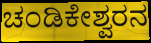
ಚಂಡಿಕೇಶ್ವರನ